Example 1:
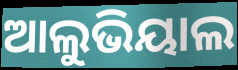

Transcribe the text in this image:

ଆଲୁଭିୟାଲ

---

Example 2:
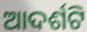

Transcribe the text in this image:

ଆଦର୍ଶଟି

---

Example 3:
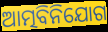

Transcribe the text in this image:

ଆତ୍ମବିନିଯୋଗ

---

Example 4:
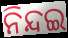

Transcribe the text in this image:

ନିନ୍ଦଇ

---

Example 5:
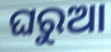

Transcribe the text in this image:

ଘରୁଆ